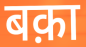
बक़ा